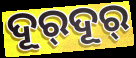
ଦୂର୍‌ଦୂର୍